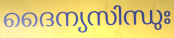
ദൈന്യസിന്ധുഃ